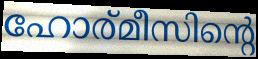
ഹോര്മീസിന്റെ